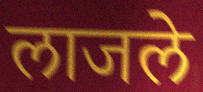
लाजले